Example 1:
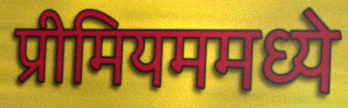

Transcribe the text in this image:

प्रीमियममध्ये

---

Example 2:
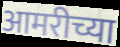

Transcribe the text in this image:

आमरीच्या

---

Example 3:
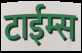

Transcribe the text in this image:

टाईम्स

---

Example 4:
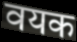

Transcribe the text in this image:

वयक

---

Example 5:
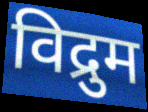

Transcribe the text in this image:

विद्रुम